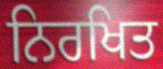
ਨਿਰਖਿਤ